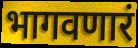
भागवणारं